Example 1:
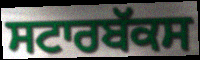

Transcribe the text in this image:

ਸਟਾਰਬੱਕਸ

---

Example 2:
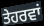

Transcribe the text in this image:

ਤੇਹਰਵਾਂ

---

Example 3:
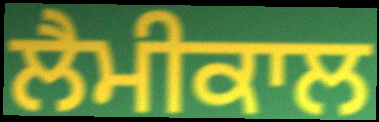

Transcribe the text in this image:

ਲੈਮੀਕਾਲ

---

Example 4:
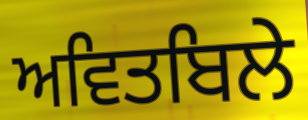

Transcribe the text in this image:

ਅਵਿਤਬਿਲੇ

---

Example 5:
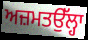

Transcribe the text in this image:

ਅਜ਼ਮਤਉੱਲ੍ਹਾ